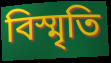
বিস্মৃতি